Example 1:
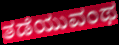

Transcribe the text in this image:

ತಡೆಯುವಂಥ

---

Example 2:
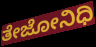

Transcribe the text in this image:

ತೇಜೋನಿಧಿ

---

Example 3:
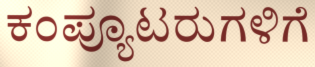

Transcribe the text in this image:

ಕಂಪ್ಯೂಟರುಗಳಿಗೆ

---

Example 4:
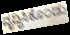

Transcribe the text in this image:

ವೃದ್ಧಿಸಿಕೊಂಡು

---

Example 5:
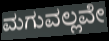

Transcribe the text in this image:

ಮಗುವಲ್ಲವೇ